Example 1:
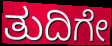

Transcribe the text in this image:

ತುದಿಗೇ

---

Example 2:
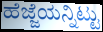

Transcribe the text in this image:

ಹೆಜ್ಜೆಯನ್ನಿಟ್ಟು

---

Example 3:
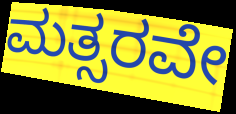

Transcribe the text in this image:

ಮತ್ಸರವೇ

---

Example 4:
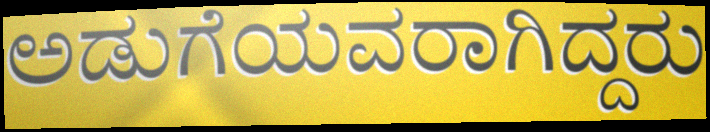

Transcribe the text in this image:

ಅಡುಗೆಯವರಾಗಿದ್ದರು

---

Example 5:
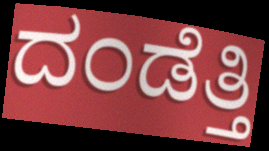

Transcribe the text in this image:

ದಂಡೆತ್ತಿ